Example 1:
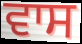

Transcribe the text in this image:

ਵਾਸ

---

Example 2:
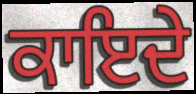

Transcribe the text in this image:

ਕਾਇਦੇ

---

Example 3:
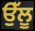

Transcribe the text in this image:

ਉੱਲੂ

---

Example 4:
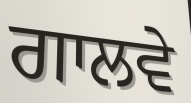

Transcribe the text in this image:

ਗਾਲਵੇ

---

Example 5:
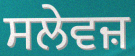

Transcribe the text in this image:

ਸਲੇਵਜ਼